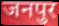
जनपुर